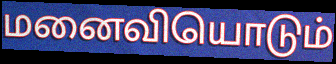
மனைவியொடும்